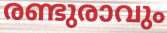
രണ്ടുരാവും